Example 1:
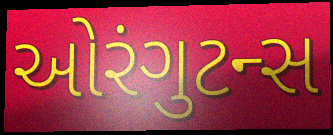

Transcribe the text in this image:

ઓરંગુટન્સ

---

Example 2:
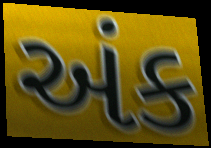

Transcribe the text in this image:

અંક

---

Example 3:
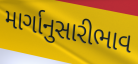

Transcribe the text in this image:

માર્ગાનુસારીભાવ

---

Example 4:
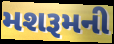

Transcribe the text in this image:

મશરૂમની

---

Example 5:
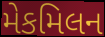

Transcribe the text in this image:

મેકમિલન